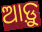
ଆଡ଼ୁ